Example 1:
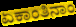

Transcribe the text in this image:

ಏಕಾಂತಿನಾಂ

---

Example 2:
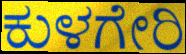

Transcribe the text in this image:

ಕುಳಗೇರಿ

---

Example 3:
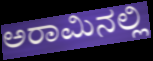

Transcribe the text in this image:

ಅರಾಮಿನಲ್ಲಿ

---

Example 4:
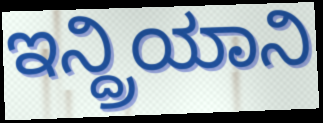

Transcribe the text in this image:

ಇನ್ದ್ರಿಯಾನಿ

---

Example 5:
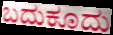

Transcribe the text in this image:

ಬದುಕೂದು